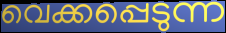
വെക്കപ്പെടുന്ന